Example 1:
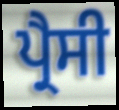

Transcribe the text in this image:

ਪ੍ਰੈਸੀ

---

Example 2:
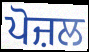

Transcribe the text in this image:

ਪੋਜ਼ਲ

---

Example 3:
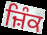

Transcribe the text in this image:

ਜ਼ਿੰਕ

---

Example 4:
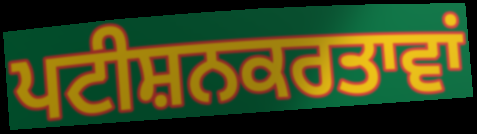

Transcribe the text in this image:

ਪਟੀਸ਼ਨਕਰਤਾਵਾਂ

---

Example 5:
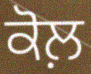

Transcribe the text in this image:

ਕੋਲ਼